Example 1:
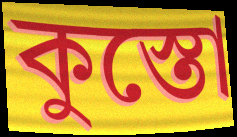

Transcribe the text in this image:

কুস্তো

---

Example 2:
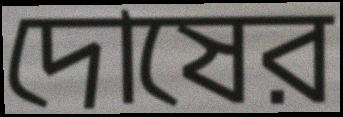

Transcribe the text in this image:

দোষের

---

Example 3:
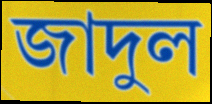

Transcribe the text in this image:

জাদুল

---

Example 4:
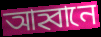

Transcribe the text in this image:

আহ্বানে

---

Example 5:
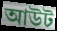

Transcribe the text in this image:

আউট